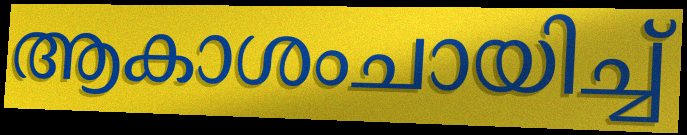
ആകാശംചായിച്ച്